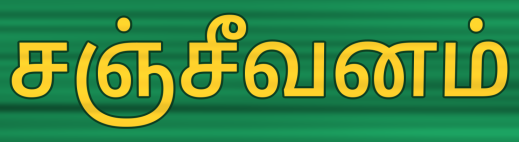
சஞ்சீவனம்